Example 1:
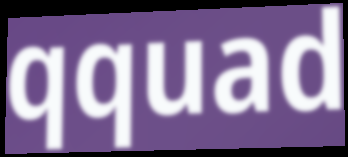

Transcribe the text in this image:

qquad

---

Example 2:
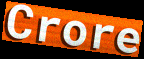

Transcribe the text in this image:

Crore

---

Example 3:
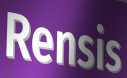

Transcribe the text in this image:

Rensis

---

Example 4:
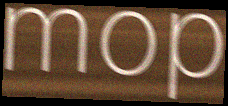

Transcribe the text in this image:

mop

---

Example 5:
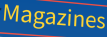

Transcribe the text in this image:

Magazines